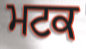
ਮਟਕ